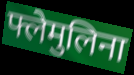
फ्लेमुलिना